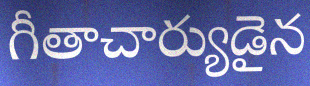
గీతాచార్యుడైన